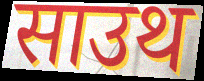
साउथ